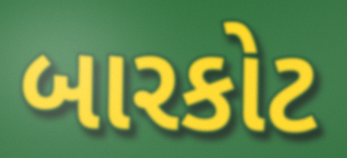
બારકોટ